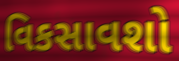
વિકસાવશો